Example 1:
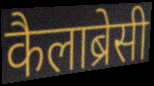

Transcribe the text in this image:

कैलाब्रेसी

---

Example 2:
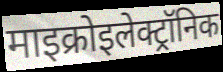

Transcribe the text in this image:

माइक्रोइलेक्ट्रॉनिक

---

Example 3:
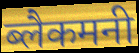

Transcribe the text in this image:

ब्लैकमनी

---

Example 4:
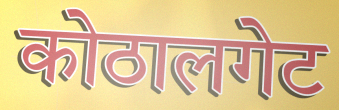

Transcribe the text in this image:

कोठालगेट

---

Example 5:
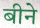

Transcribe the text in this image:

बीने